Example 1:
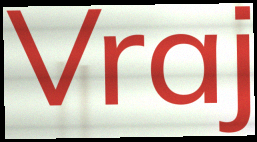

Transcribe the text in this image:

Vraj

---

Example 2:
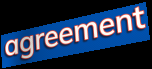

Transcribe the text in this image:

agreement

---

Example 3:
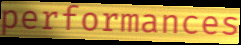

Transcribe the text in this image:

performances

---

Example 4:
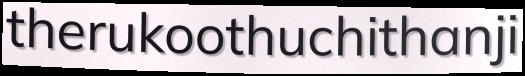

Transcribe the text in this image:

therukoothuchithanji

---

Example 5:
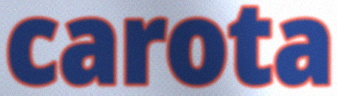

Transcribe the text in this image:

carota